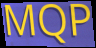
MQP